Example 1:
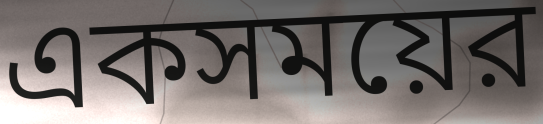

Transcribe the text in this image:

একসময়ের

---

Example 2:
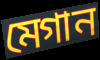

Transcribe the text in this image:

মেগান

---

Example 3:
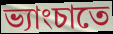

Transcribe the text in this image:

ভ্যাংচাতে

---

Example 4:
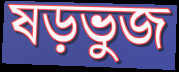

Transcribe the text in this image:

ষড়ভুজ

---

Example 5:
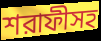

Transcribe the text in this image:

শরাফীসহ